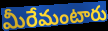
మీరేమంటారు